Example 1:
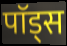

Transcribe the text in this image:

पॉड्स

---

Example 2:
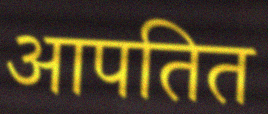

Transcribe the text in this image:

आपतित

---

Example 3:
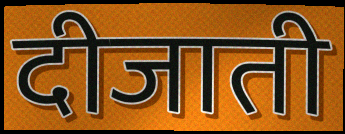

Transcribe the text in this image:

दीजाती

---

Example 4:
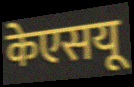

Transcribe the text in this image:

केएसयू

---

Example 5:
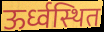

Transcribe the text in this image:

ऊर्ध्वस्थित